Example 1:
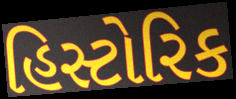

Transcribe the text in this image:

હિસ્ટોરિક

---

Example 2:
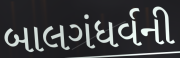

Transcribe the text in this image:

બાલગંધર્વની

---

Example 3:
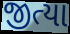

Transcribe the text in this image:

જીત્યા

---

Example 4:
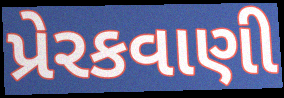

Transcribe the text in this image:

પ્રેરકવાણી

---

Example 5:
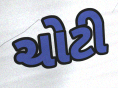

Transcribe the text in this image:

ચોટી